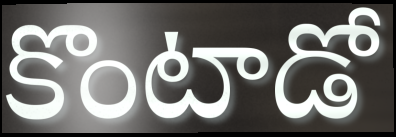
కొంటాడో